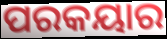
ପରକୟାର